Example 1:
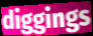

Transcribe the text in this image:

diggings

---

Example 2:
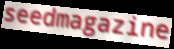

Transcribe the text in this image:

seedmagazine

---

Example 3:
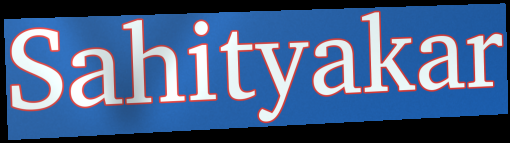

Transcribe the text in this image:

Sahityakar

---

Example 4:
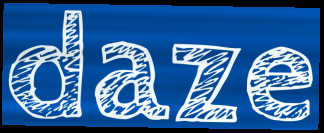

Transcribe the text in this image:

daze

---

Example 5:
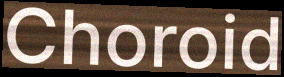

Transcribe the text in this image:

Choroid